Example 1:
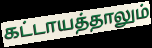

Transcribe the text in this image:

கட்டாயத்தாலும்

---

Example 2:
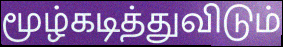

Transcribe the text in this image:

மூழ்கடித்துவிடும்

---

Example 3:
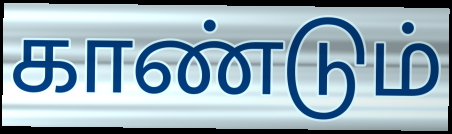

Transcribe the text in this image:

காண்டும்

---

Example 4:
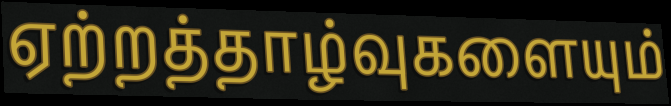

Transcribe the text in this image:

ஏற்றத்தாழ்வுகளையும்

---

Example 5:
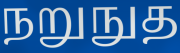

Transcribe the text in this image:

நறுநுத